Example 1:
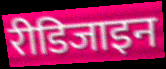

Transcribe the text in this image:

रीडिजाइन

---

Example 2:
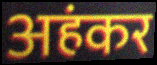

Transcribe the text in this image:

अहंकर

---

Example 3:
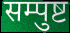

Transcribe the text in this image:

सम्पुष्ट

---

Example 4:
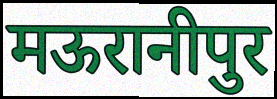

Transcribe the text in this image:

मऊरानीपुर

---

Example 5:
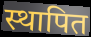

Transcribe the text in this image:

स्‍थापित